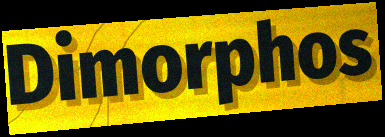
Dimorphos